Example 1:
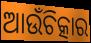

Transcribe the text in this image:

ଆଉଁଚିତ୍କାର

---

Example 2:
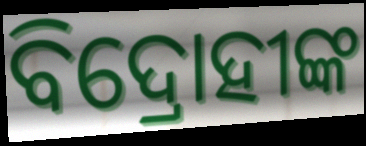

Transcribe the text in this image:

ବିଦ୍ରୋହୀଙ୍କ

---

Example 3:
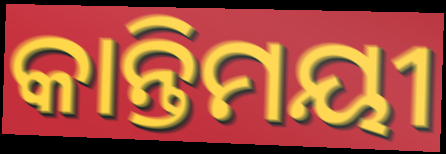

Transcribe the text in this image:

କାନ୍ତିମୟୀ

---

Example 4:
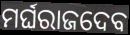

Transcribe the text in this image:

ମର୍ଘରାଜଦେବ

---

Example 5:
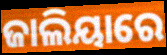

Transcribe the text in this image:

ଜାଲିୟାରେ